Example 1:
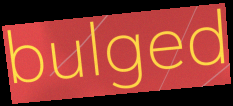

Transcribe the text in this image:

bulged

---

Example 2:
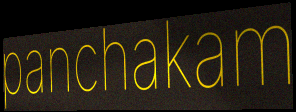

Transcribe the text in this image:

panchakam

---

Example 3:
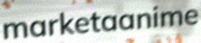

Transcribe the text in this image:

marketaanime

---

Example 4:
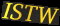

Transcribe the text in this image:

ISTW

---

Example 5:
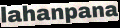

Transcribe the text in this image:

lahanpana